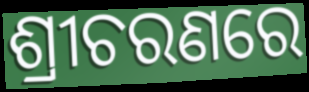
ଶ୍ରୀଚରଣରେ